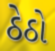
ઠેઠો